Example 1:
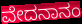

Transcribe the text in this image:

ವೇದನಾನಂ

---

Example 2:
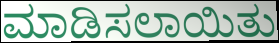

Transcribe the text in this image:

ಮಾಡಿಸಲಾಯಿತು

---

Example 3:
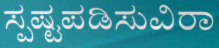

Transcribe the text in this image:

ಸ್ಪಷ್ಟಪಡಿಸುವಿರಾ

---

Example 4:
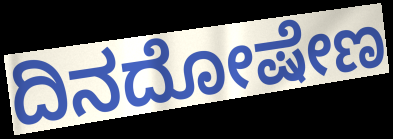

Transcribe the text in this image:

ದಿನದೋಷೇಣ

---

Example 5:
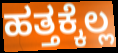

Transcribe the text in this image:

ಹತ್ತಕ್ಕೆಲ್ಲ